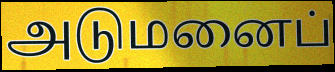
அடுமனைப்